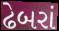
ઢેબરાં